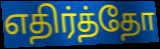
எதிர்த்தோ